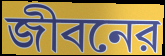
জীবনের